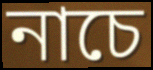
নাচে